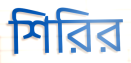
শিরির